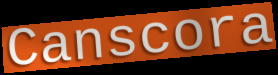
Canscora